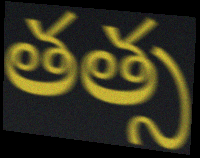
తత్స